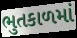
ભુતકાળમાં